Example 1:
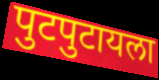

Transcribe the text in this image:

पुटपुटायला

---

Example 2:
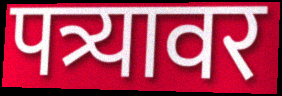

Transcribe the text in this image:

पत्र्यावर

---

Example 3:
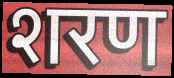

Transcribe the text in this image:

शरण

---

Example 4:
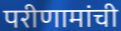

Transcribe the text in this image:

परीणामांची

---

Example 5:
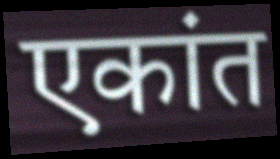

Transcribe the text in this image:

एकांत